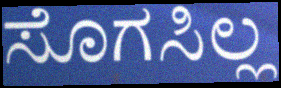
ಸೊಗಸಿಲ್ಲ